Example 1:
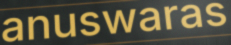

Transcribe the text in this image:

anuswaras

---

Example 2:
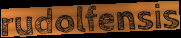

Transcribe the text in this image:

rudolfensis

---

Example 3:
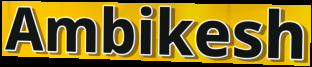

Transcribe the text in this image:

Ambikesh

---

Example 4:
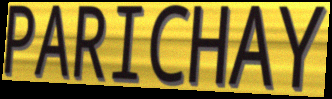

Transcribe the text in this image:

PARICHAY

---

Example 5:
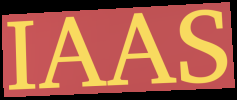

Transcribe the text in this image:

IAAS